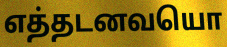
எத்தடனவயொ